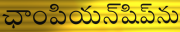
ఛాంపియన్‌షిప్‌ను